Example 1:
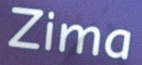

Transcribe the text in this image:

Zima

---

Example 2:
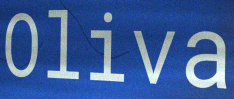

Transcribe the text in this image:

Oliva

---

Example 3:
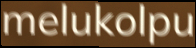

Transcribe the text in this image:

melukolpu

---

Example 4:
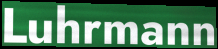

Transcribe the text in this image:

Luhrmann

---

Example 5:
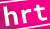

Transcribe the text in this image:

hrt